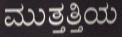
ಮುತ್ತತ್ತಿಯ